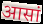
आसां